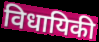
विधायिकी